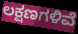
ಲಕ್ಷಣಗಳಿವೆ